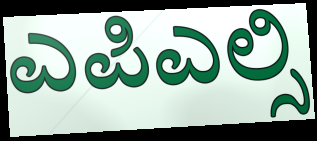
ಎಪಿಎಲ್ಸಿ